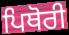
ਪਿਥੋਰੀ